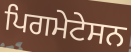
ਪਿਗਮੇਟੇਸਨ